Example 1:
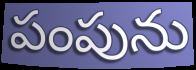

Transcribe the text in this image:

పంపును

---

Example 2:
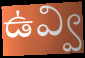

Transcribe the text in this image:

ఉవ్వి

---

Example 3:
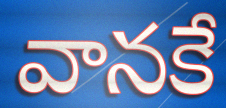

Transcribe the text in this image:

వానకే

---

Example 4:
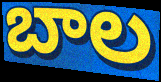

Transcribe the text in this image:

బాల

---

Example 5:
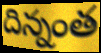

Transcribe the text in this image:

దిన్నంత